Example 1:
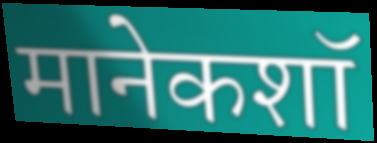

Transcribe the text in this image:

मानेकशॉ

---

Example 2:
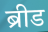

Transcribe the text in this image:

ब्रीड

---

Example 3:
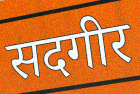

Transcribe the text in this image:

सदगीर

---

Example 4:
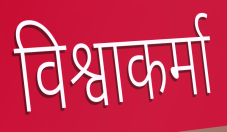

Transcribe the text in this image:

विश्वाकर्मा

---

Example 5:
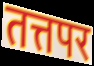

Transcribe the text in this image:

तत्तपर